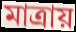
মাত্ৰায়